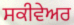
ਸਕੀਵੇਅਰ